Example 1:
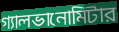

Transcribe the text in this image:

গ্যালভানোমিটার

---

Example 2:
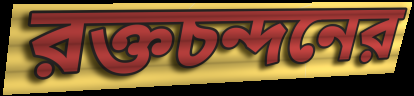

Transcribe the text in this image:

রক্তচন্দনের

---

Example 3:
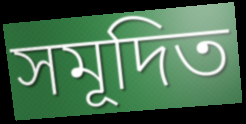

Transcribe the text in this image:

সমূদিত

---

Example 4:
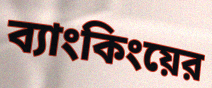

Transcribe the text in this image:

ব্যাংকিংয়ের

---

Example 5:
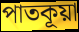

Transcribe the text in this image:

পাতকূয়া